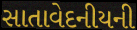
સાતાવેદનીયની